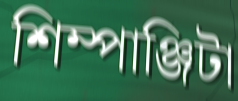
শিম্পাঞ্জিটা